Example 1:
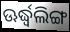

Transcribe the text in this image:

ଊର୍ଦ୍ଧ୍ୱଲିଙ୍ଗ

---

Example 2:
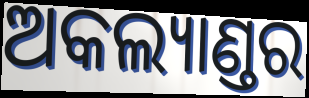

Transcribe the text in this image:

ଅକଲ୍ୟାଣ୍ଡର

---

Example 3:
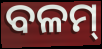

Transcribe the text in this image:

ବଳମ୍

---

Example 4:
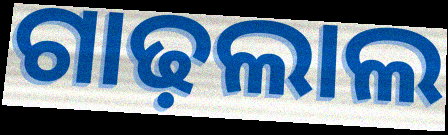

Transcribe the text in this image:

ଗାଢ଼ଲାଲ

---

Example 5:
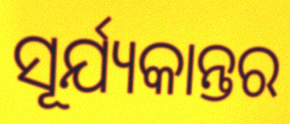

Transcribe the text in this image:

ସୂର୍ଯ୍ୟକାନ୍ତର